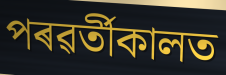
পৰৱৰ্তীকালত